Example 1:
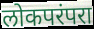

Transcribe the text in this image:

लोकपरंपरा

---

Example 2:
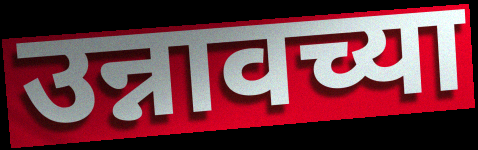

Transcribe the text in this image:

उन्नावच्या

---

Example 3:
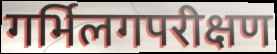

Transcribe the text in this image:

गर्भिलगपरीक्षण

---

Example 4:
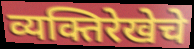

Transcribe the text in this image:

व्यक्तिरेखेचे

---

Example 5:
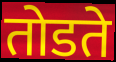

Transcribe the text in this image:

तोडते